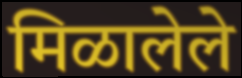
मिळालेले